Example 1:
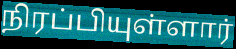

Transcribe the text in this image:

நிரப்பியுள்ளார்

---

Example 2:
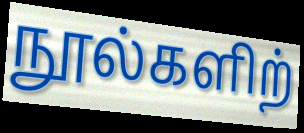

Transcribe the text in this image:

நூல்களிற்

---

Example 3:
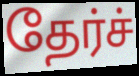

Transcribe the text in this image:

தேர்ச்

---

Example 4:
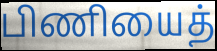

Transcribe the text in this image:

பிணியைத்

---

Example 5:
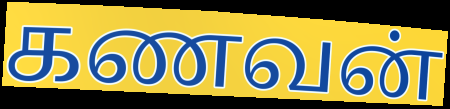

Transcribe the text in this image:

கணவன்